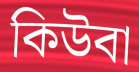
কিউবা